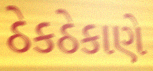
ઠેકઠેકાણે